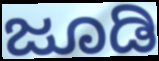
ಜೂಡಿ